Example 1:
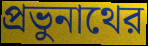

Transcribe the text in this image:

প্রভুনাথের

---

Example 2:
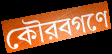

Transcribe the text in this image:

কৌরবগণে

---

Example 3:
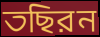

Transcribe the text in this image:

তছিরন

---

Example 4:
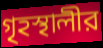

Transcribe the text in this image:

গৃহস্থালীর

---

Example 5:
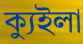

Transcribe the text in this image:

ক্যুইলা